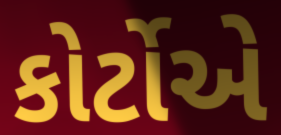
કોર્ટોએ